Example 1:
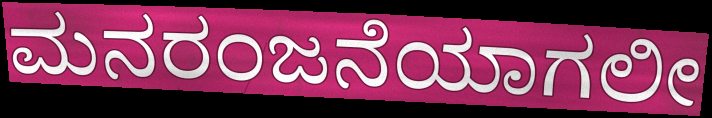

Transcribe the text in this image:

ಮನರಂಜನೆಯಾಗಲೀ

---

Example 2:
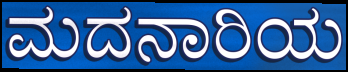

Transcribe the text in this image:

ಮದನಾರಿಯ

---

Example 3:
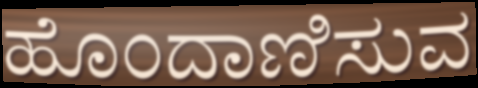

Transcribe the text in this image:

ಹೊಂದಾಣಿಸುವ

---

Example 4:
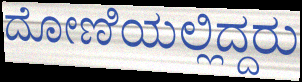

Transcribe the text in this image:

ದೋಣಿಯಲ್ಲಿದ್ದರು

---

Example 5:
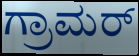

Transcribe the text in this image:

ಗ್ರಾಮರ್